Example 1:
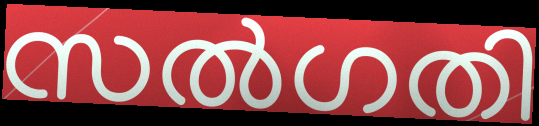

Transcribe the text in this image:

സൽഗതി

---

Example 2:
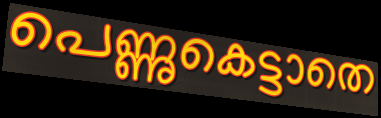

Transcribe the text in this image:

പെണ്ണുകെട്ടാതെ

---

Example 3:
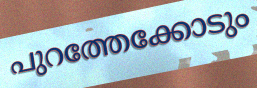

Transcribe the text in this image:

പുറത്തേക്കോടും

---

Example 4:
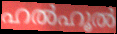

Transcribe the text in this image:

ഹൽഹൂൽ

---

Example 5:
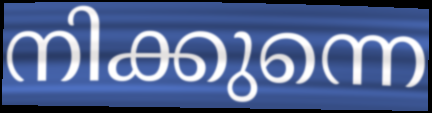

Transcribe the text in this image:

നിക്കുന്നെ